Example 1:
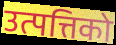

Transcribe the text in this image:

उत्पत्तिको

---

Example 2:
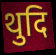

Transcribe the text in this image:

थुदि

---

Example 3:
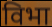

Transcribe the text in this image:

विभा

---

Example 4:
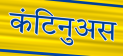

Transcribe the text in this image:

कंटिनुअस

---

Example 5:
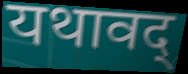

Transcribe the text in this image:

यथावद्